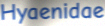
Hyaenidae